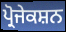
ਪ੍ਰੋਜੇਕਸ਼ਨ